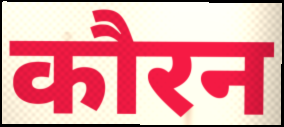
कौरन